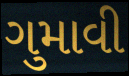
ગુમાવી